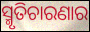
ସ୍ମୃତିଚାରଣାର